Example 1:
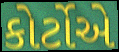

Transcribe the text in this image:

કોર્ટોએ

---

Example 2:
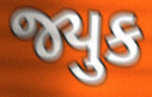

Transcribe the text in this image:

જ્યુક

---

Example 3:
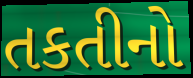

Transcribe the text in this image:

તકતીનો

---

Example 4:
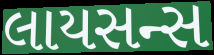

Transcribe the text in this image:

લાયસન્સ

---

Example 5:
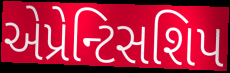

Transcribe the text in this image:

એપ્રેન્ટિસશિપ